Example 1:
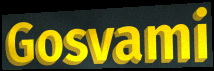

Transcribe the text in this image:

Gosvami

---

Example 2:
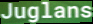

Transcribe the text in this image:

Juglans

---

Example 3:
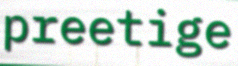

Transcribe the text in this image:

preetige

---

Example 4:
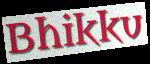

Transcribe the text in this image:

Bhikku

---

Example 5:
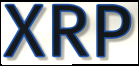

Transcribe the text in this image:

XRP